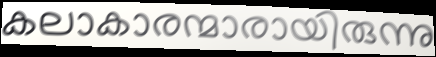
കലാകാരന്മാരായിരുന്നു